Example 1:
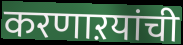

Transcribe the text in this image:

करणाऱयांची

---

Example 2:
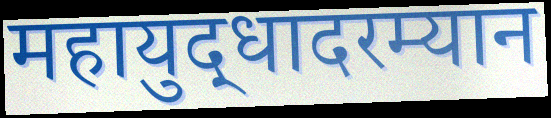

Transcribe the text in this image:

महायुद्धादरम्यान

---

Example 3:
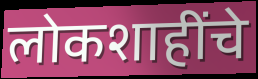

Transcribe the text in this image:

लोकशाहींचे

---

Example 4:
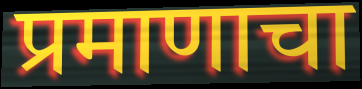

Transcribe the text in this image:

प्रमाणाचा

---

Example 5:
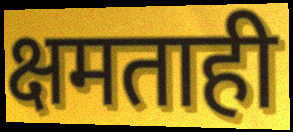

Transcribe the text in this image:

क्षमताही